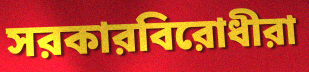
সরকারবিরোধীরা